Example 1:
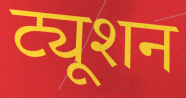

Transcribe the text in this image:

ट्यूशन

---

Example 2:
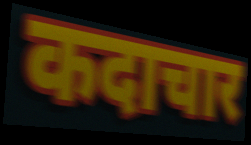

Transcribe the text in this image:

कदाचार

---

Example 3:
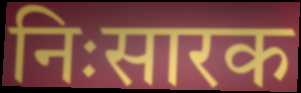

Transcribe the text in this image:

निःसारक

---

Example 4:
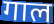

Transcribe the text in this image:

गाल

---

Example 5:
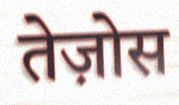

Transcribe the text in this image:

तेज़ोस